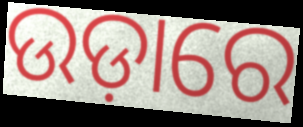
ଉଡ଼ାରେ